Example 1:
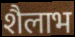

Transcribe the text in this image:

शैलाभ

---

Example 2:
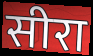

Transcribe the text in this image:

सीरा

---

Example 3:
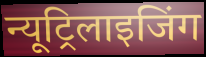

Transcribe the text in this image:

न्यूट्रिलाइजिंग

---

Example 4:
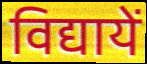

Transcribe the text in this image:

विद्यायें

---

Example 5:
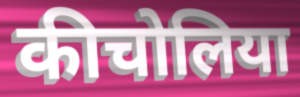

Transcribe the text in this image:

कीचोलिया